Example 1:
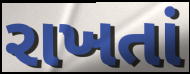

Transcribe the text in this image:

રાખતાં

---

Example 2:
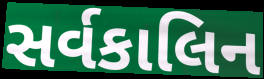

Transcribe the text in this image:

સર્વકાલિન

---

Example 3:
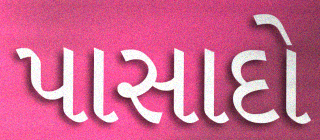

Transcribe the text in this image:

પાસાદો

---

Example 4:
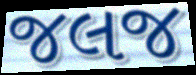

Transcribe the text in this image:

જલજ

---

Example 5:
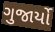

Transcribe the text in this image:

ગુજાર્યો